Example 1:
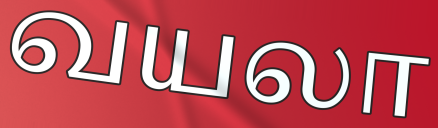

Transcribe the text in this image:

வயலா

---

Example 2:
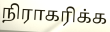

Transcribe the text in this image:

நிராகரிக்க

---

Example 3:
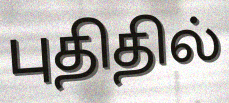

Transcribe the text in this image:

புதிதில்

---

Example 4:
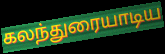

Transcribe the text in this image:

கலந்துரையாடிய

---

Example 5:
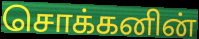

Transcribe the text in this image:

சொக்கனின்